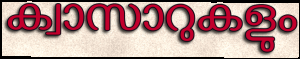
ക്വാസാറുകളും